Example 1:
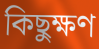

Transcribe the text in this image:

কিছুক্ষণ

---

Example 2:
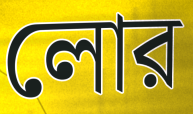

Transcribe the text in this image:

লোর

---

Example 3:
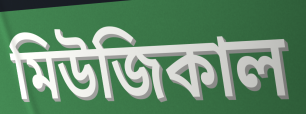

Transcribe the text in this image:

মিউজিকাল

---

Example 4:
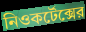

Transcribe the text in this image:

নিওকর্টেক্সের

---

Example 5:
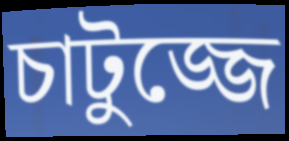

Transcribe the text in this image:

চাটুজ্জে